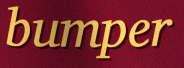
bumper